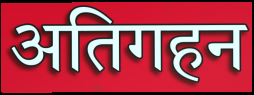
अतिगहन